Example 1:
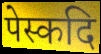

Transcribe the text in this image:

पेस्कदि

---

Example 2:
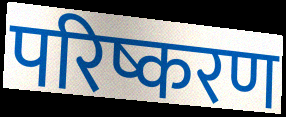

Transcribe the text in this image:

परिष्करण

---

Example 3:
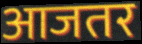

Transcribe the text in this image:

आजतर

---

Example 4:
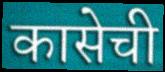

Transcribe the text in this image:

कासेची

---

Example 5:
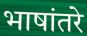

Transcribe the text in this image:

भाषांतरे